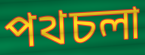
পথচলা